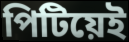
পিটিয়েই